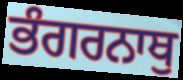
ਭੰਗਰਨਾਥੁ